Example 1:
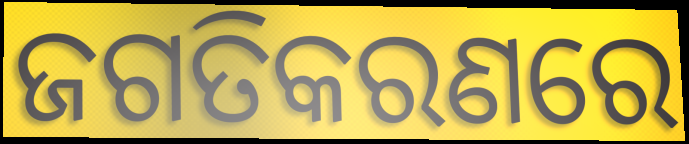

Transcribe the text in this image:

ଜଗତିକରଣରେ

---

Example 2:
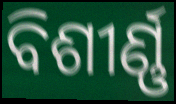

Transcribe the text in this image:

ବିଶୀର୍ଣ୍ଣ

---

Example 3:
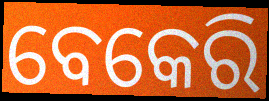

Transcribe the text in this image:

ବେକେରି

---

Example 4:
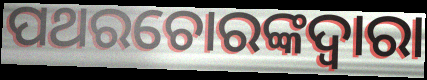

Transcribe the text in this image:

ପଥରଚୋରଙ୍କଦ୍ୱାରା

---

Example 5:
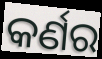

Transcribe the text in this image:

କର୍ଣର